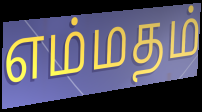
எம்மதம்